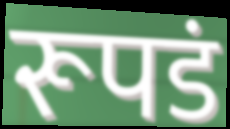
रूपडं